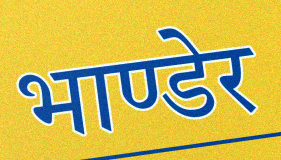
भाण्‍डेर